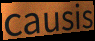
causis